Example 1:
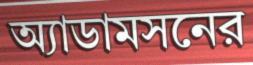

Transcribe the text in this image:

অ্যাডামসনের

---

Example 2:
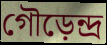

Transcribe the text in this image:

গৌড়েন্দ্র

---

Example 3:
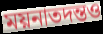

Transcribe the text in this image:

ময়নাতদন্তও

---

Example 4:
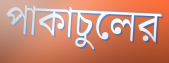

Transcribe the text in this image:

পাকাচুলের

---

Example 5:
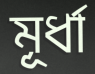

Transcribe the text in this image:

মূর্ধা